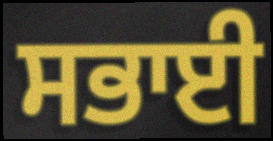
ਸਭਾਈ